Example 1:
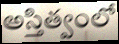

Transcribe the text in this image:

అస్తిత్వంలో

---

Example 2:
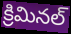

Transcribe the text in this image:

క్రిమినల్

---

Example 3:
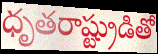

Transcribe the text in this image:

ధృతరాష్ట్రుడితో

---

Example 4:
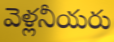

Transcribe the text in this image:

వెళ్లనీయరు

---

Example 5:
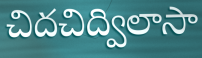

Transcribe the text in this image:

చిదచిద్విలాసా